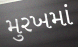
મુરખમાં